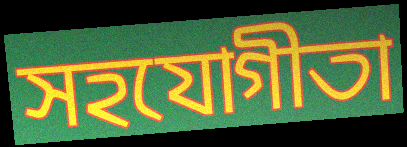
সহযোগীতা